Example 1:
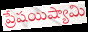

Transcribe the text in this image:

ప్రేషయిష్యామి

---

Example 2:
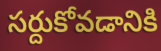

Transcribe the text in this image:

సర్దుకోవడానికి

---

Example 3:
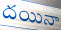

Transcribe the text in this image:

దయినా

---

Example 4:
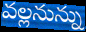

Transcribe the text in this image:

వల్లనున్ను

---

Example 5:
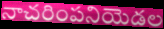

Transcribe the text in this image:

నాచరింపనియెడల